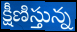
క్షీణిస్తున్న